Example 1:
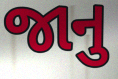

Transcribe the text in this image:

જાનુ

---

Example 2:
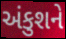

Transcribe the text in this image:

અંકુશને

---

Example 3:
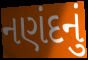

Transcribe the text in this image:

નણંદનું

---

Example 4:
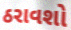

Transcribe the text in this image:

ઠરાવશો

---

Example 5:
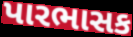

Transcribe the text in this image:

પારભાસક